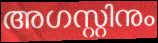
അഗസ്റ്റിനും